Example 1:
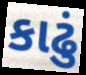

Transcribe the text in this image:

કાઢું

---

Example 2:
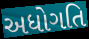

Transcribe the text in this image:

અધોગતિ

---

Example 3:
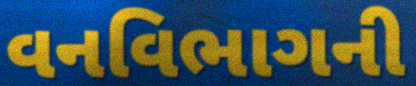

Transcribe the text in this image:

વનવિભાગની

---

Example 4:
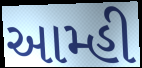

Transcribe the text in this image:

આમ્હી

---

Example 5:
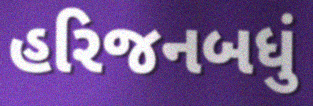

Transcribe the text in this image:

હરિજનબધું